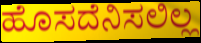
ಹೊಸದೆನಿಸಲಿಲ್ಲ